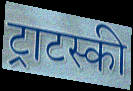
ट्राटस्की